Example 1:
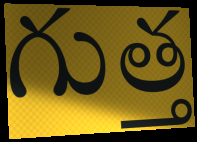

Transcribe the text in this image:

గుత్త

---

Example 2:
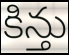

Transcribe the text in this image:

కిన్తు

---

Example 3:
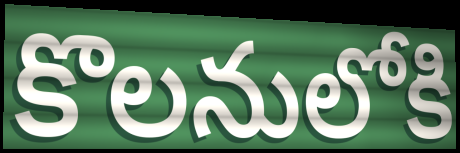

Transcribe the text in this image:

కొలనులోకి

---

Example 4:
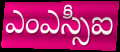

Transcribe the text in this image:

ఎంఎస్సీఐ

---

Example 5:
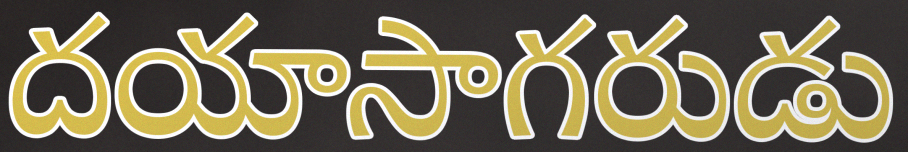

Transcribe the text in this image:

దయాసాగరుడు